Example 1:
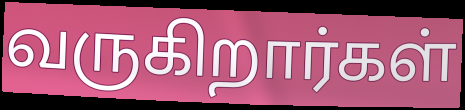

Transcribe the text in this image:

வருகிறார்கள்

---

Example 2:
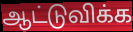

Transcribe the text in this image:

ஆட்டுவிக்க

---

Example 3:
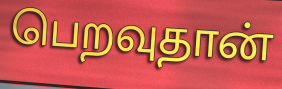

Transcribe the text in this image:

பெறவுதான்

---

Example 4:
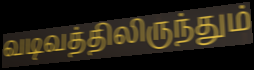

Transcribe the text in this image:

வடிவத்திலிருந்தும்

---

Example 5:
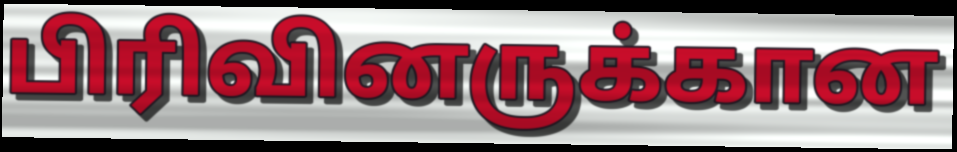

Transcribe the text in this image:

பிரிவினருக்கான